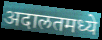
अदालतमध्ये